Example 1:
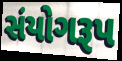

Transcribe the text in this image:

સંયોગરૂપ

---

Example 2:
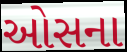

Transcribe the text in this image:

ઓસના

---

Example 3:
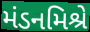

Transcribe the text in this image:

મંડનમિશ્રે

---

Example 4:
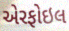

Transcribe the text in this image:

એરફોઇલ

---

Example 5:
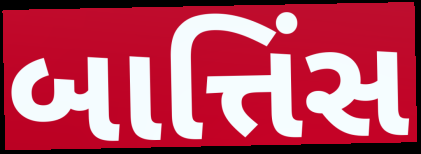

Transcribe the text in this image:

બાત્તિંસ